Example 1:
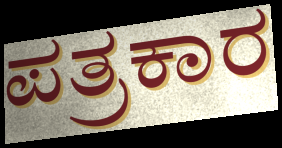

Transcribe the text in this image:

ಪತ್ರಕಾರ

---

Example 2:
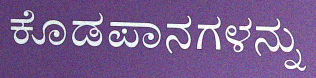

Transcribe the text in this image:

ಕೊಡಪಾನಗಳನ್ನು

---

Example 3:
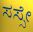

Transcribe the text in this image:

ಸಸ್ಸೇ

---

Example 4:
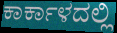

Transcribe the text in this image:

ಕಾರ್ಕಾಳದಲ್ಲಿ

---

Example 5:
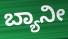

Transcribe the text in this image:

ಬ್ಯಾನೀ